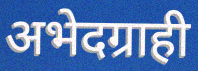
अभेदग्राही